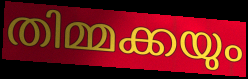
തിമ്മക്കയും